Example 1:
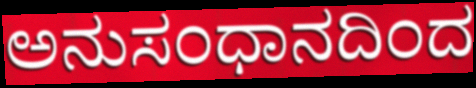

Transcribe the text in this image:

ಅನುಸಂಧಾನದಿಂದ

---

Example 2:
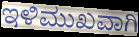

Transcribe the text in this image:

ಇಳಿಮುಖವಾಗಿ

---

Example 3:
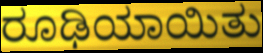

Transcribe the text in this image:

ರೂಢಿಯಾಯಿತು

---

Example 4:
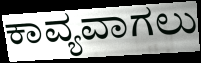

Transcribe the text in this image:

ಕಾವ್ಯವಾಗಲು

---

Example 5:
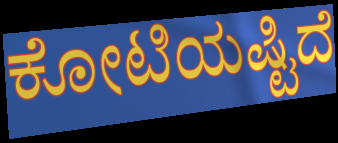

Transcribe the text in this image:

ಕೋಟಿಯಷ್ಟಿದೆ